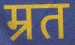
म्रत